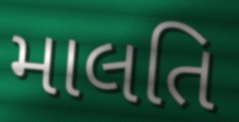
માલતિ